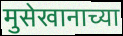
मुसेखानाच्या